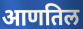
आणतिल